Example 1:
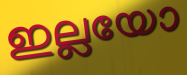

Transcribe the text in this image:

ഇല്ലയോ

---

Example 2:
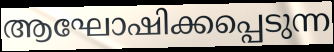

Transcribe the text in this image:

ആഘോഷിക്കപ്പെടുന്ന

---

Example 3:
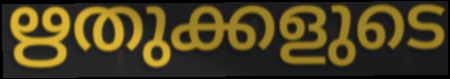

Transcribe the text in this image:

ഋതുക്കളുടെ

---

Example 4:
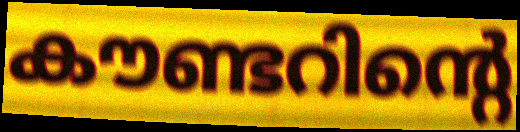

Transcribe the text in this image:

കൗണ്ടറിന്റെ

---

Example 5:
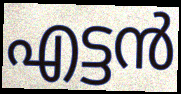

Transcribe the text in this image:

എട്ടൻ